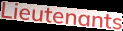
Lieutenants